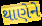
થાણેને